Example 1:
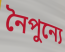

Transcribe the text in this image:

নৈপুন্যে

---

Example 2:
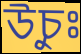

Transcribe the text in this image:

উচুঃ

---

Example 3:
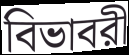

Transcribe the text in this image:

বিভাবরী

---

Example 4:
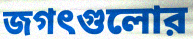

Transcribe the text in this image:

জগৎগুলোর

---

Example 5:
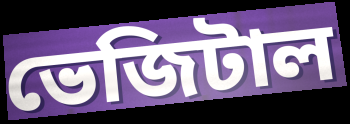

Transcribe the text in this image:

ভেজিটাল